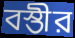
বস্তীর